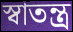
স্বাতন্ত্র